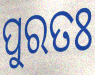
ପୁରତଃ